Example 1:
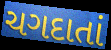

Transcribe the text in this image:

ચગદાતાં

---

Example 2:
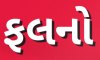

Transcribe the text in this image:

ફલનો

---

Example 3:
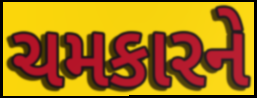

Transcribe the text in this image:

ચમકારને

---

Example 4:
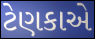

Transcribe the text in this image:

ટેણકાએ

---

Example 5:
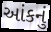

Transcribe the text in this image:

આંકનું